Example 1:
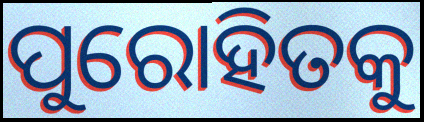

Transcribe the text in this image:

ପୁରୋହିତକୁ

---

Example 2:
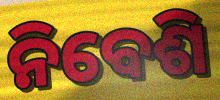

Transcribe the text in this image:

ନିବେଶି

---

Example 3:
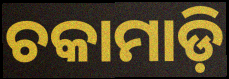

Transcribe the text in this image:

ଚକାମାଡ଼ି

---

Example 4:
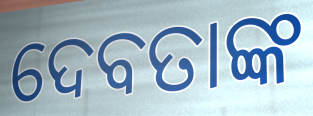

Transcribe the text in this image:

ଦେବତାଙ୍କ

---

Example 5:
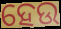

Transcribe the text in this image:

ହେଉ